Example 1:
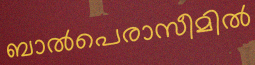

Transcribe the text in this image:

ബാൽപെരാസീമിൽ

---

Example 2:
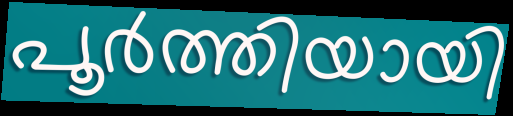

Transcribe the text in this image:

പൂർത്തിയായി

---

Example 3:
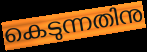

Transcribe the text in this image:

കെടുന്നതിനു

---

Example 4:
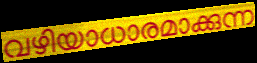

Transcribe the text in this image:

വഴിയാധാരമാക്കുന്ന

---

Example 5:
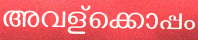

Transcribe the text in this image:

അവള്ക്കൊപ്പം